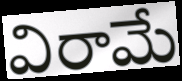
విరామే